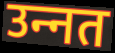
उन्नत